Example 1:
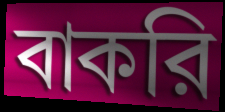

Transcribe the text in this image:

বাকরি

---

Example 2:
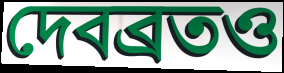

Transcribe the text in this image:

দেবব্রতও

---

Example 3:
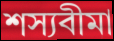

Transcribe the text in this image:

শস্যবীমা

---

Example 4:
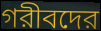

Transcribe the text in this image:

গরীবদের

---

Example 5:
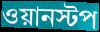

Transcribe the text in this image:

ওয়ানস্টপ